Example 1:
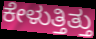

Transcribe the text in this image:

ಕೇಳುತ್ತಿತ್ತು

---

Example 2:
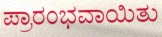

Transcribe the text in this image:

ಪ್ರಾರಂಭವಾಯಿತು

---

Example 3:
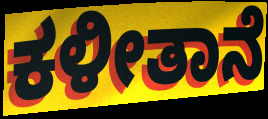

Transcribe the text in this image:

ಕಳೀತಾನೆ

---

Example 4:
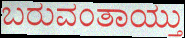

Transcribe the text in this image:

ಬರುವಂತಾಯ್ತು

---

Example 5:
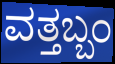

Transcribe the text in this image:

ವತ್ತಬ್ಬಂ